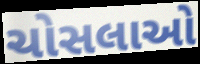
ચોસલાઓ